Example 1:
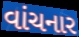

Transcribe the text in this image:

વાંચનાર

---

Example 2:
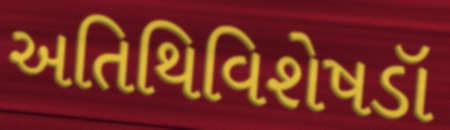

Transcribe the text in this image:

અતિથિવિશેષડૉ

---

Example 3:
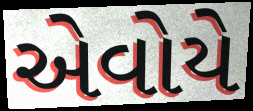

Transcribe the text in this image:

એવોયે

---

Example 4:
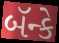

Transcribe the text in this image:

બૅન્કે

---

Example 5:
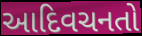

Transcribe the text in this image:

આદિવચનતો